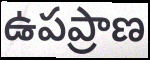
ఉపప్రాణ